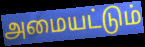
அமையட்டும்